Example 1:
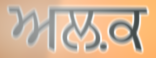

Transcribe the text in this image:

ਅਲ਼ਕ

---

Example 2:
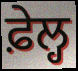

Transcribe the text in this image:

ਫ਼ੇਲ੍ਹ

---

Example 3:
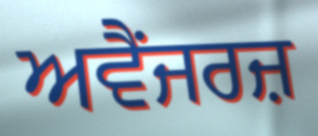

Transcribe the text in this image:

ਅਵੈਂਜਰਜ਼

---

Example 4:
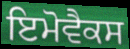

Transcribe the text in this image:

ਇਮੋਵੈਕਸ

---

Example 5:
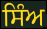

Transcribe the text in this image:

ਸਿੰਅ